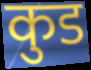
कुड